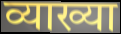
व्याख्या